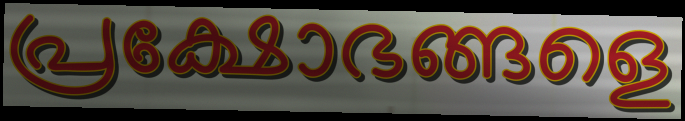
പ്രക്ഷോഭങ്ങളെ